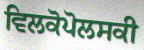
ਵਿਲਕੋਪੋਲਸਕੀ